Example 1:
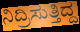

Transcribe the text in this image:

ನಿದ್ರಿಸುತ್ತಿದ್ದ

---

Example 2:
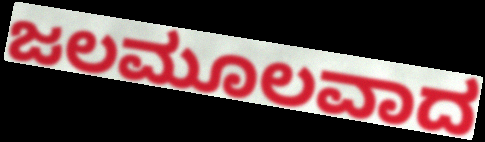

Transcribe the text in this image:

ಜಲಮೂಲವಾದ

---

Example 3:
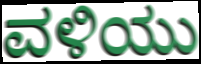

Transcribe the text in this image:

ವಳಿಯು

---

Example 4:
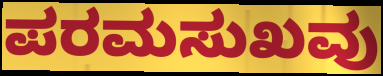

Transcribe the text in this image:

ಪರಮಸುಖವು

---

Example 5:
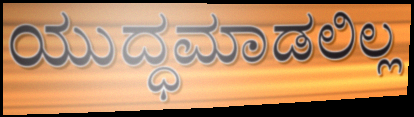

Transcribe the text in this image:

ಯುದ್ಧಮಾಡಲಿಲ್ಲ